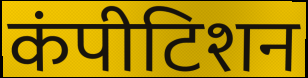
कंपीटिशन